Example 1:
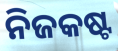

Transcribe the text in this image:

ନିଜକଷ୍ଟ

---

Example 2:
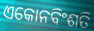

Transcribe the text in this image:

ଏକୋନବିଂଶତି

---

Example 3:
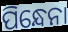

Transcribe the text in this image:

ପିନ୍ଧେନା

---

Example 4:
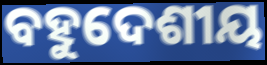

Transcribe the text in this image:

ବହୁଦେଶୀୟ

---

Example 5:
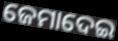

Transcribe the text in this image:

ଜେମାଦେଇ